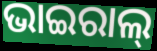
ଭାଇରାଲ୍